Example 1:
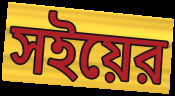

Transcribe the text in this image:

সইয়ের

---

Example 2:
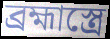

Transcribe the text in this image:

ব্রহ্মাস্ত্রে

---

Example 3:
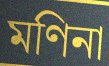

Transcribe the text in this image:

মণিনা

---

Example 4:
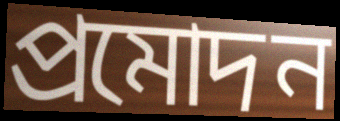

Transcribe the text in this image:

প্রমোদন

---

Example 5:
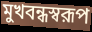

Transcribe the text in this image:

মুখবন্ধস্বরূপ